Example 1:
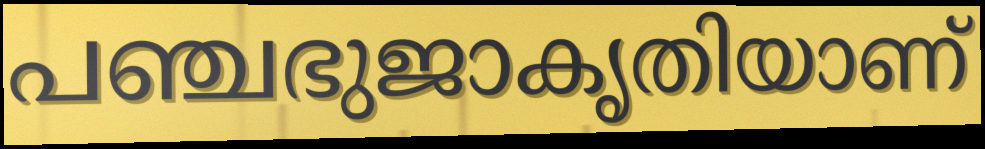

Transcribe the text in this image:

പഞ്ചഭുജാകൃതിയാണ്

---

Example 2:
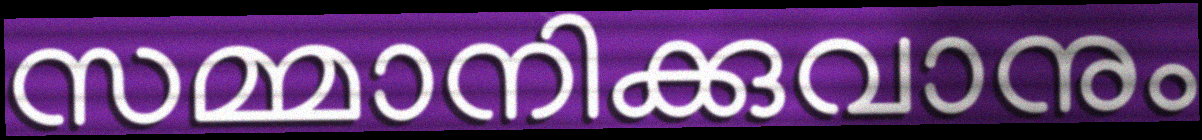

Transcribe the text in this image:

സമ്മാനിക്കുവാനും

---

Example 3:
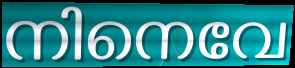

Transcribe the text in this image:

നിനെവേ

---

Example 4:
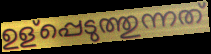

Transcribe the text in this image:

ഉള്പ്പെടുത്തുന്നത്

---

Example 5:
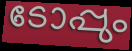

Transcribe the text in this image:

ടോപ്പും